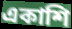
একাশি